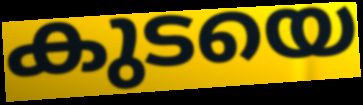
കുടയെ